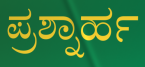
ಪ್ರಶ್ನಾರ್ಹ